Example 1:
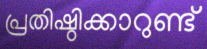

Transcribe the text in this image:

പ്രതിഷ്ഠിക്കാറുണ്ട്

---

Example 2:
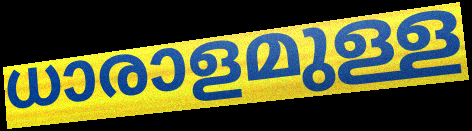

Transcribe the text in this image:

ധാരാളമുള്ള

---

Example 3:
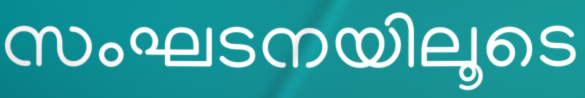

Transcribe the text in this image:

സംഘടനയിലൂടെ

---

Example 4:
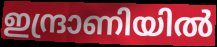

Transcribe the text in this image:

ഇന്ദ്രാണിയിൽ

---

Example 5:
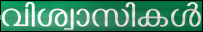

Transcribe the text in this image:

വിശ്വാസികൾ